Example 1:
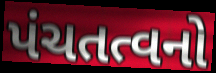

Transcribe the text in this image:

પંચતત્વનો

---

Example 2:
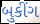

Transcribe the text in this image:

બુકીંગ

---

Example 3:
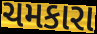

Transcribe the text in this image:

ચમકારા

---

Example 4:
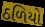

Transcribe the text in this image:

ઠળિયો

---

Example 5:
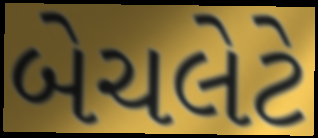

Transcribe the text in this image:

બેચલેટે